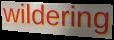
wildering